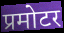
प्रमोटर